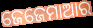
ଜେଜେମାଆର